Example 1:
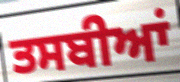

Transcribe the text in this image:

ਤਸਬੀਆਂ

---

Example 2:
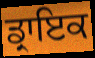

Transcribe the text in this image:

ਡ੍ਰਾਇਕ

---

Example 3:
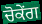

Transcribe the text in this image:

ਚੋਕੇਂਗ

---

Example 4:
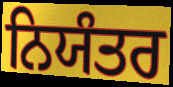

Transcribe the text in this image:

ਨਿਯੰਤਰ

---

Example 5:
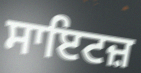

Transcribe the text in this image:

ਸਾਇਟਜ਼